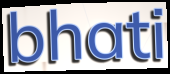
bhati